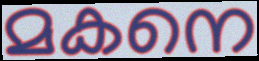
മകനെ